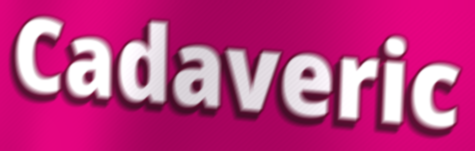
Cadaveric